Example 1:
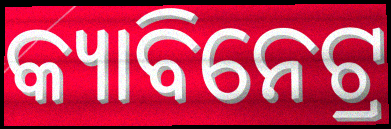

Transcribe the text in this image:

କ୍ୟାବିନେଟ୍ର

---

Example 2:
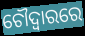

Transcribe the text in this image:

ଚୌଦ୍ୱାରରେ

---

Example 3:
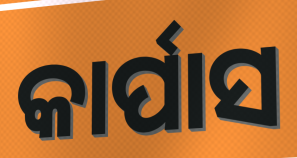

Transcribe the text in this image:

କାର୍ପାସ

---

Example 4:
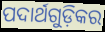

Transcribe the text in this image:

ପଦାର୍ଥଗୁଡ଼ିକର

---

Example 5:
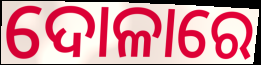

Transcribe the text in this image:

ଦୋଳାରେ